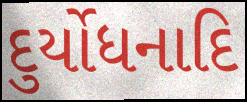
દુર્યોધનાદિ